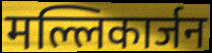
मल्लिकार्जन